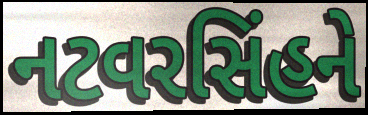
નટવરસિંહને